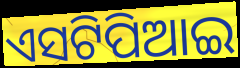
ଏସଟିପିଆଇ